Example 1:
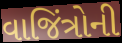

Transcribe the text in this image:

વાજિંત્રોની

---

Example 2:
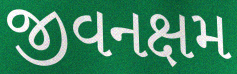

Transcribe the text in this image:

જીવનક્ષમ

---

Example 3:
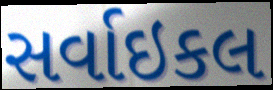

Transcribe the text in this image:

સર્વાઇકલ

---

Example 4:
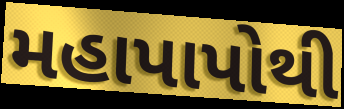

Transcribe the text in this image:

મહાપાપોથી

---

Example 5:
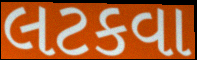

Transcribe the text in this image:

લટકવા